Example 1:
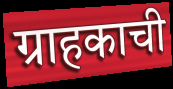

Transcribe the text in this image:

ग्राहकाची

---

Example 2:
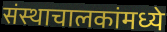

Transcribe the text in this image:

संस्थाचालकांमध्ये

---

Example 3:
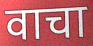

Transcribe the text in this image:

वाचा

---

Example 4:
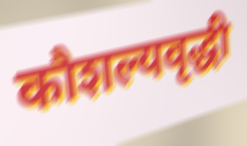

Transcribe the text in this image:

कौशल्यवृद्धी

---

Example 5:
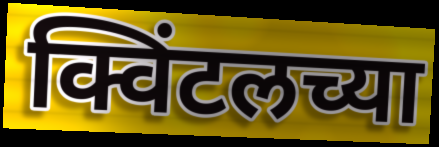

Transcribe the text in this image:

क्विंटलच्या